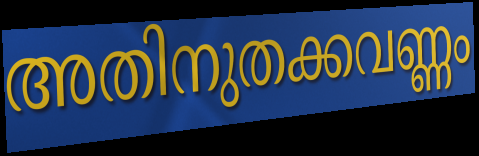
അതിനുതക്കവണ്ണം